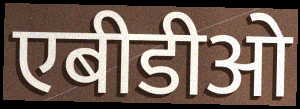
एबीडीओ